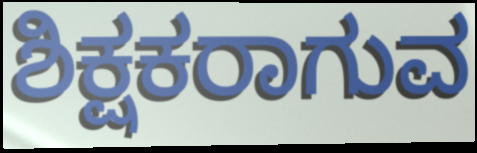
ಶಿಕ್ಷಕರಾಗುವ